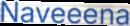
Naveeena